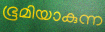
ഭൂമിയാകുന്ന